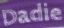
Dadie